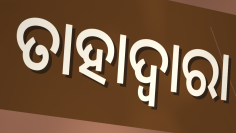
ତାହାଦ୍ୱାରା